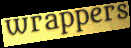
wrappers